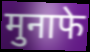
मुनाफे